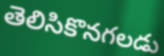
తెలిసికొనగలడు